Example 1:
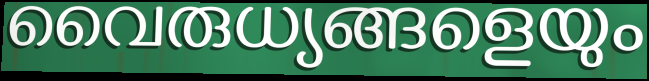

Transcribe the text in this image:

വൈരുധ്യങ്ങളെയും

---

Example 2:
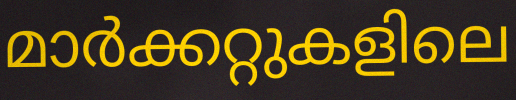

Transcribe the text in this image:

മാർക്കറ്റുകളിലെ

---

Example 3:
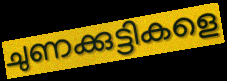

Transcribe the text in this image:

ചുണക്കുട്ടികളെ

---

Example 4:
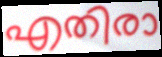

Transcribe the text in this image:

എതിരാ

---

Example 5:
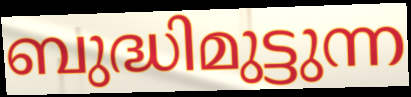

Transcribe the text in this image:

ബുദ്ധിമുട്ടുന്ന